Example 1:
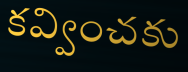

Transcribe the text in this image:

కవ్వించకు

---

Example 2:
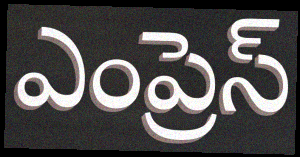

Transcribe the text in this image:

ఎంప్రెస్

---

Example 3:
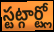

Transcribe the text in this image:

స్టట్గార్ట్లో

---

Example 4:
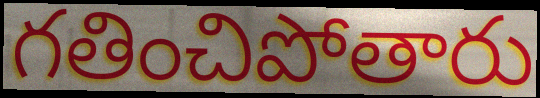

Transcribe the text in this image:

గతించిపోతారు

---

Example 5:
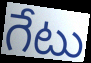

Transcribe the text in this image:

గేటు